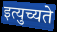
इत्युच्यते